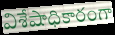
విశేషాధికారంగా